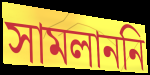
সামলাননি